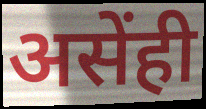
असेंही